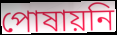
পোষায়নি